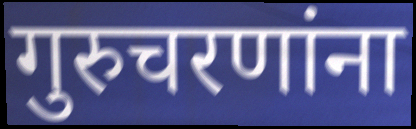
गुरुचरणांना